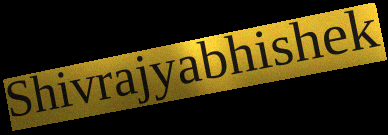
Shivrajyabhishek